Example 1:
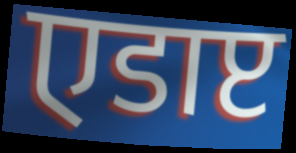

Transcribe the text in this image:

एडाप्ट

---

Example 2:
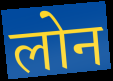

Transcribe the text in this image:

लोन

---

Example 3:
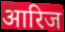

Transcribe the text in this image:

आरिज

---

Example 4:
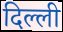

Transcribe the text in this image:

दिल्ली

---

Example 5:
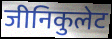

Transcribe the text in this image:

जीनिकुलेट